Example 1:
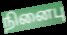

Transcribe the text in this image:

நினைபு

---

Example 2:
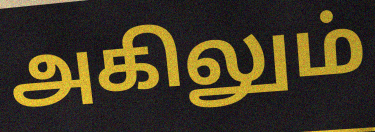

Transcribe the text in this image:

அகிலும்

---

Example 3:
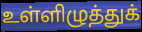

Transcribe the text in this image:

உள்ளிழுத்துக்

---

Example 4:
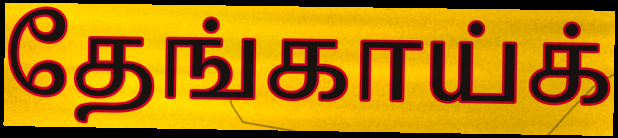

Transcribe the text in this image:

தேங்காய்க்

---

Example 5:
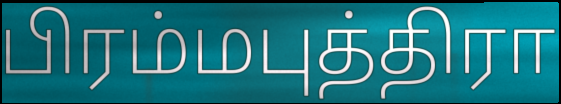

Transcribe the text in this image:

பிரம்மபுத்திரா